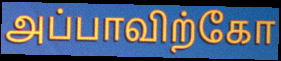
அப்பாவிற்கோ